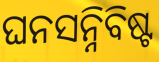
ଘନସନ୍ନିବିଷ୍ଟ